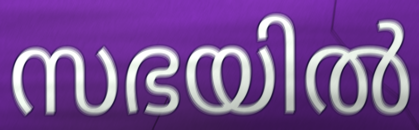
സഭയിൽ